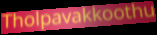
Tholpavakkoothu